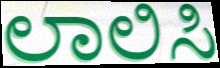
ಲಾಲಿಸಿ